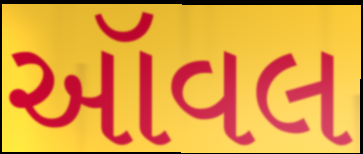
ઑવલ